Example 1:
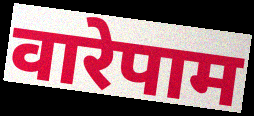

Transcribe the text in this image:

वारेपाम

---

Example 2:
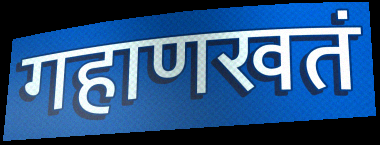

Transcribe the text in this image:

गहाणखतं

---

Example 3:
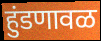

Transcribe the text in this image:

हुंडणावळ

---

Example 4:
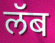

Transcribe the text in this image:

लॅब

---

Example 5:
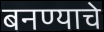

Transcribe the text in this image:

बनण्याचे